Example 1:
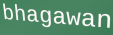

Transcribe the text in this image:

bhagawan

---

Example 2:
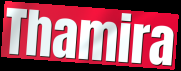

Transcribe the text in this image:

Thamira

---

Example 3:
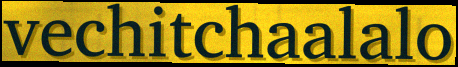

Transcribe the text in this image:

vechitchaalalo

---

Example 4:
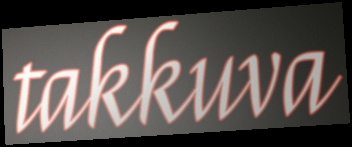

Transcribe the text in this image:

takkuva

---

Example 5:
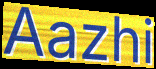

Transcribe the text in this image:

Aazhi